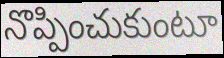
నొప్పించుకుంటూ